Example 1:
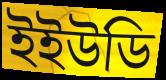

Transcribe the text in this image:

ইইউডি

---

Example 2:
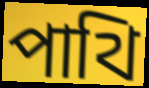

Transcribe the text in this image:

পাথি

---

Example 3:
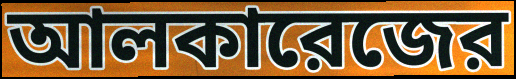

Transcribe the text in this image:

আলকারেজের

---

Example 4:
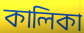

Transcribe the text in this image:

কালিকা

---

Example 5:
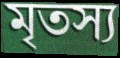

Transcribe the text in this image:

মৃতস্য